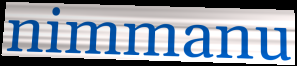
nimmanu